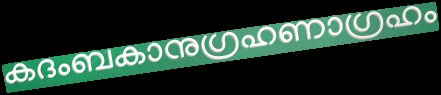
കദംബകാനുഗ്രഹണാഗ്രഹം